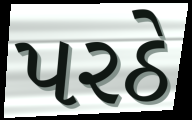
પરઠે